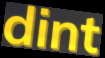
dint